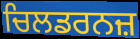
ਚਿਲਡਰਨਜ਼